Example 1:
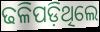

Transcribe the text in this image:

ଢଳିପଡ଼ିଥିଲେ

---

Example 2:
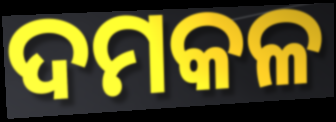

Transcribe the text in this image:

ଦମକଳ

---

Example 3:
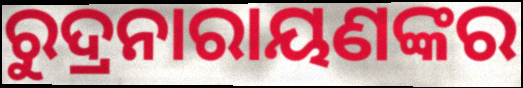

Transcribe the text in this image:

ରୁଦ୍ରନାରାୟଣଙ୍କର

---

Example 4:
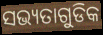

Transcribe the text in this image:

ସଭ୍ୟତାଗୁଡିକ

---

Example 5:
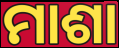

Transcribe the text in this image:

ମାଶା